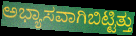
ಅಭ್ಯಾಸವಾಗಿಬಿಟ್ಟಿತ್ತು